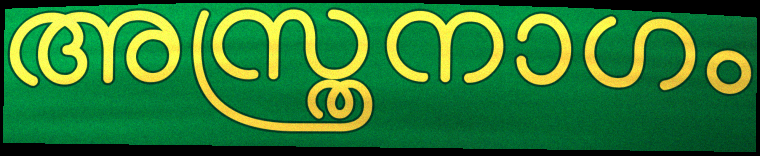
അസ്ത്രനാഗം